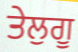
ਤੇਲੁਗੂ